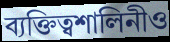
ব্যক্তিত্বশালিনীও